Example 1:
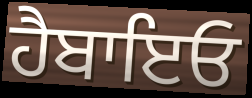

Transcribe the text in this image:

ਹੈਬਾਇਓ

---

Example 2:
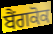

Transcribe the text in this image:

ਬੈਂਗਕੋਕ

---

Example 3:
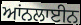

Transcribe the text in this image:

ਆਂਨਲਾਈਨ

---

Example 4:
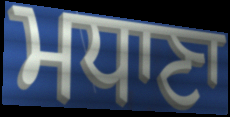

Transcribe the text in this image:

ਮਧਾਣਾ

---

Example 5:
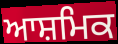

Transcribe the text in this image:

ਆਸ਼ਮਿਕ